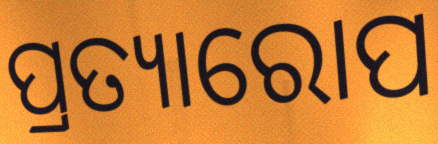
ପ୍ରତ୍ୟାରୋପ